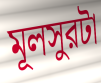
মূলসুরটা